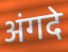
अंगदे